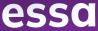
essa